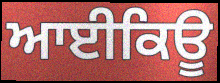
ਆਈਕਿਊ